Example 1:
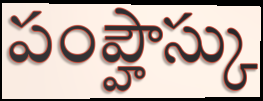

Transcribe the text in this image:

పంప్హౌస్కు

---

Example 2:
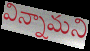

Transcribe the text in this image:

విన్నామని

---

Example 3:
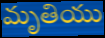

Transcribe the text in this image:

మృతియు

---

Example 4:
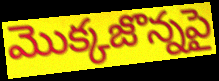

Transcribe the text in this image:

మొక్కజొన్నపై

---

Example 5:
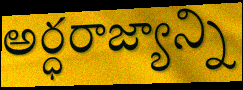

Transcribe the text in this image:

అర్ధరాజ్యాన్ని